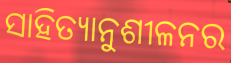
ସାହିତ୍ୟାନୁଶୀଳନର